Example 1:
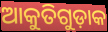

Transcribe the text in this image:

ଆକୁତିଗୁଡ଼ାକ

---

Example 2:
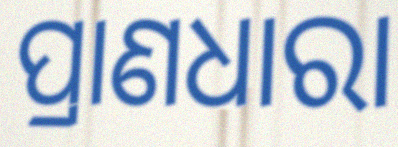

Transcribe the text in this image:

ପ୍ରାଣଧାରା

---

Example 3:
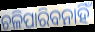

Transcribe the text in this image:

ଚଳିପାରିବନାହିଁ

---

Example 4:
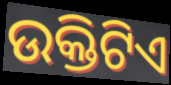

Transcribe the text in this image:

ଉକ୍ତିଟିଏ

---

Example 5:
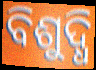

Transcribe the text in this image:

ବିଶୁଦ୍ଧି